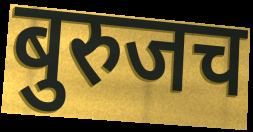
बुरुजच